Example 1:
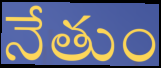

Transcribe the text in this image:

నేతుం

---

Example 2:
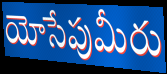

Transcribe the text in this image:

యోసేపుమీరు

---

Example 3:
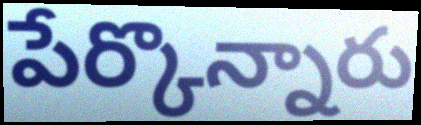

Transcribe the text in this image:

పేర్కొన్నారు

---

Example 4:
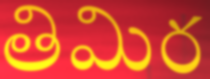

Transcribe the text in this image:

తిమిర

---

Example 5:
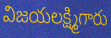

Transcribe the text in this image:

విజయలక్ష్మిగారు